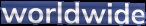
worldwide